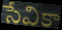
సేవికా